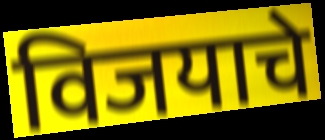
विजयाचे